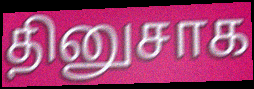
தினுசாக